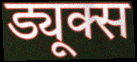
ड्यूक्स